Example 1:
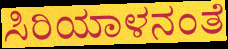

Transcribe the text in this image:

ಸಿರಿಯಾಳನಂತೆ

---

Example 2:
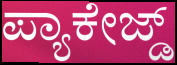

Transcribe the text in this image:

ಪ್ಯಾಕೇಜ್ಡ್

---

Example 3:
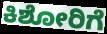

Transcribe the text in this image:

ಕಿಶೋರಿಗೆ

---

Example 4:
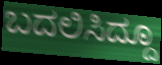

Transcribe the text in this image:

ಬದಲಿಸಿದ್ದೂ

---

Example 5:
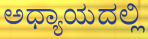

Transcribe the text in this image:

ಅಧ್ಯಾಯದಲ್ಲಿ